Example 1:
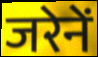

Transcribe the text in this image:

जरेनें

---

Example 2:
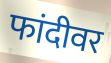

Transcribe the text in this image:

फांदीवर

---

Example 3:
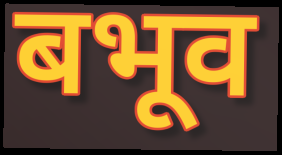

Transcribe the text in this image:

बभूव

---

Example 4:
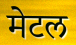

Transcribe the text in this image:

मेटल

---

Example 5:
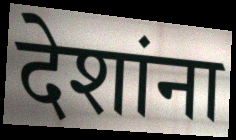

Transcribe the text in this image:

देशांना